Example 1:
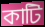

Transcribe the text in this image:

কাটি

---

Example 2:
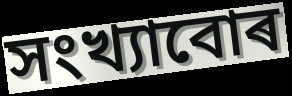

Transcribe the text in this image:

সংখ্যাবোৰ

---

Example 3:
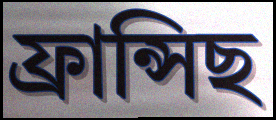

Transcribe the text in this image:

ফ্ৰান্সিছ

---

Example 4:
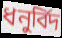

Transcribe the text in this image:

ধনুৰ্বিদ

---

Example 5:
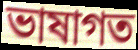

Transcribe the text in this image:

ভাষাগত